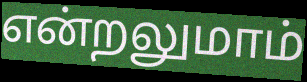
என்றலுமாம்